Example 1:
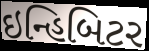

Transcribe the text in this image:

ઇન્હિબિટર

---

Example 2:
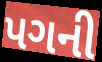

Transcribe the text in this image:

પગની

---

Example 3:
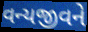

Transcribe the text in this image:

વન્યજીવને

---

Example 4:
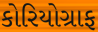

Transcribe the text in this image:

કોરિયોગ્રાફ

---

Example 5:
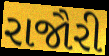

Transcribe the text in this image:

રાજૌરી